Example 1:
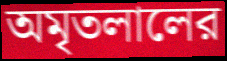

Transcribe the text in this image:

অমৃতলালের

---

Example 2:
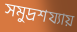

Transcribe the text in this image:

সমুদ্রশয্যায়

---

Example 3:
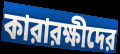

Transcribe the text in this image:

কারারক্ষীদের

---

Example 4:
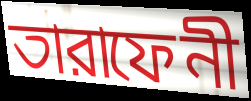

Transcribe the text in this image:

তারাফেনী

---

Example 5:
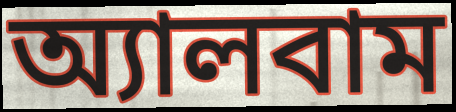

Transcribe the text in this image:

অ্যালবাম